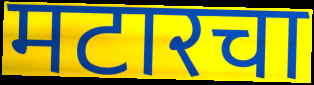
मटारचा